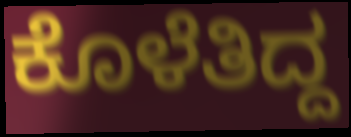
ಕೊಳೆತಿದ್ದ